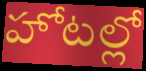
హోటల్లో